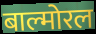
बाल्‍मोरल